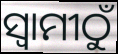
ସ୍ୱାମୀଠୁଁ